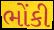
ભોંકી